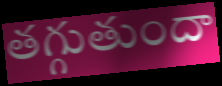
తగ్గుతుందా